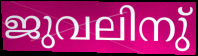
ജുവലിനു്